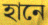
হানে